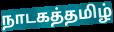
நாடகத்தமிழ்